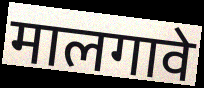
मालगावे